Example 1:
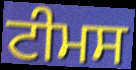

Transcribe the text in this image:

ਟੀਮਸ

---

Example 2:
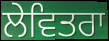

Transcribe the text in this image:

ਲੇਵਿਤਰਾ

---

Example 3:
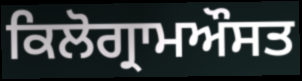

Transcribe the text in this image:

ਕਿਲੋਗ੍ਰਾਮਔਸਤ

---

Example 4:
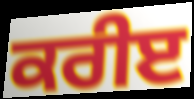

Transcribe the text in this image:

ਕਰੀੲ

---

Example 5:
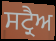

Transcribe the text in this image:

ਸਟ੍ਰੈਅ